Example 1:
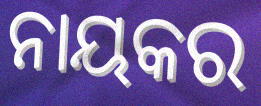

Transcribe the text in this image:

ନାୟକର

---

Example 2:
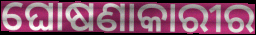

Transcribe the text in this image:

ଘୋଷଣାକାରୀର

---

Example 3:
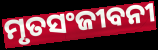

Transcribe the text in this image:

ମୃତସଂଜୀବନୀ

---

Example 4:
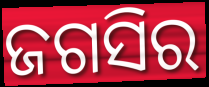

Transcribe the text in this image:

ଜଗସିର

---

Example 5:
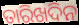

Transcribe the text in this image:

ତାରିଖଦିନ